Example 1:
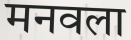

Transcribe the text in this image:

मनवला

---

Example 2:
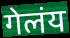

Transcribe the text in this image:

गेलंय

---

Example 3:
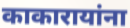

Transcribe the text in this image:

काकारायांना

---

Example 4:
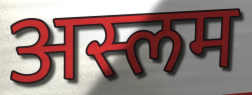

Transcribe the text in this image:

अस्लम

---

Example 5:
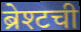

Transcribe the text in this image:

ब्रेश्टची